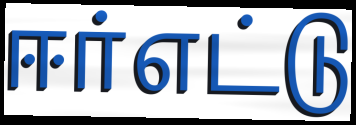
ஈர்எட்டு